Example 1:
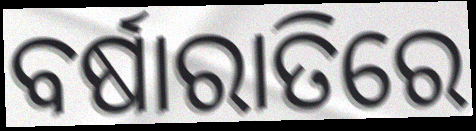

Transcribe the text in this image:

ବର୍ଷାରାତିରେ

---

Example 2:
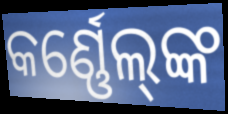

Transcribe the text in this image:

କର୍ଣ୍ଣେଲ୍‌ଙ୍କ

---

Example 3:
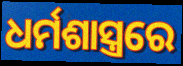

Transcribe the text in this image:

ଧର୍ମଶାସ୍ତ୍ରରେ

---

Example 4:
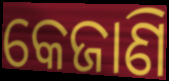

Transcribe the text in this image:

କେଜାଣି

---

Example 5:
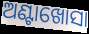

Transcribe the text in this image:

ଅଣ୍ଟାଖୋସା